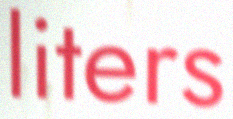
liters